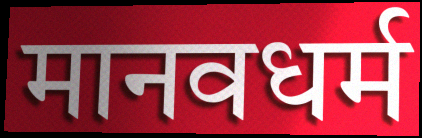
मानवधर्म